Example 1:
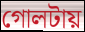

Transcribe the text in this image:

গোলটায়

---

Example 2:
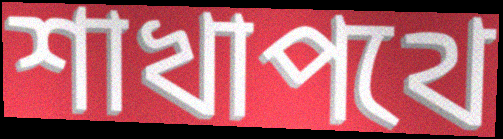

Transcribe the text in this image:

শাখাপথে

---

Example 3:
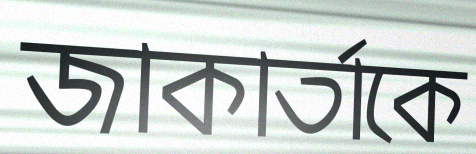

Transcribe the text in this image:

জাকার্তাকে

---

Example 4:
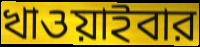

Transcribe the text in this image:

খাওয়াইবার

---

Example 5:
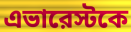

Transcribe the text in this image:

এভারেস্টকে